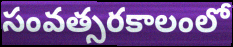
సంవత్సరకాలంలో